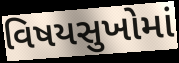
વિષયસુખોમાં